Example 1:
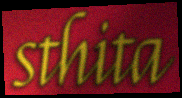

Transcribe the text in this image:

sthita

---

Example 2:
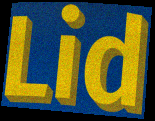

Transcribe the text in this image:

Lid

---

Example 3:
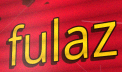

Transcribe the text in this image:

fulaz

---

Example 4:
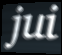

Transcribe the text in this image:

jui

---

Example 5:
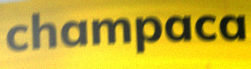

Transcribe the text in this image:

champaca